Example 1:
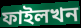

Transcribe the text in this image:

ফাইলখন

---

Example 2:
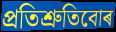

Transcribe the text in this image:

প্ৰতিশ্ৰুতিবোৰ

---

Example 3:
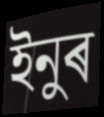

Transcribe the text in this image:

ইনুৰ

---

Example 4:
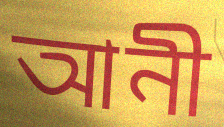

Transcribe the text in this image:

আনী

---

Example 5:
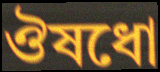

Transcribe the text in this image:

ঔষধো